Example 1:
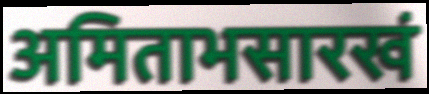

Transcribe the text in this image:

अमिताभसारखं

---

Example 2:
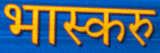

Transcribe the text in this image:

भास्करु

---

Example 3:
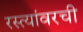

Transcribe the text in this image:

रस्त्यांवरची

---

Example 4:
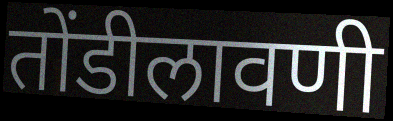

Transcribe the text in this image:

तोंडीलावणी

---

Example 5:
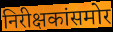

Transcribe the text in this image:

निरीक्षकांसमोर